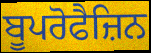
ਬੂਪਰੋਫੈਜ਼ਿਨ